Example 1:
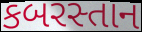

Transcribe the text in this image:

કબરસ્તાન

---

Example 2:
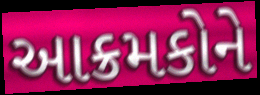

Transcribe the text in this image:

આક્રમકોને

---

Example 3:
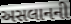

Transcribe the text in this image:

અસલાનની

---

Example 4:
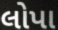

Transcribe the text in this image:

લોપા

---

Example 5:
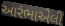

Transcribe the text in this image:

આરંભાએલી